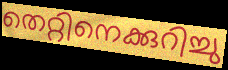
തെറ്റിനെക്കുറിച്ചു